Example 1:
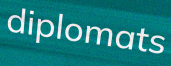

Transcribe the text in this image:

diplomats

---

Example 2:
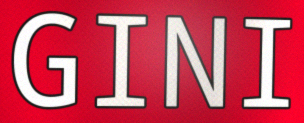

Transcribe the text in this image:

GINI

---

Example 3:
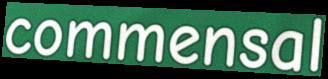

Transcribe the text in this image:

commensal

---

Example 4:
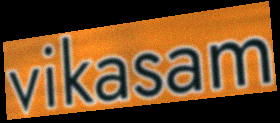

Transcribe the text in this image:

vikasam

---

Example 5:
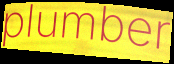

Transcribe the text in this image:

plumber